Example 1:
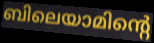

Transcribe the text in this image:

ബിലെയാമിന്റെ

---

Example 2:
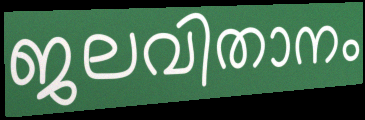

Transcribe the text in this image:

ജലവിതാനം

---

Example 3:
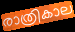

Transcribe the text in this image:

രാത്രികാല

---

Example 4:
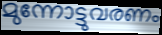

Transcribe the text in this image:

മുന്നോട്ടുവരണം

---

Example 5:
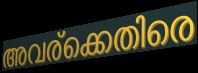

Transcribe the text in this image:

അവര്ക്കെതിരെ